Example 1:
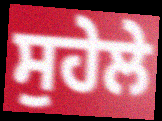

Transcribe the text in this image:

ਸੁਹੇਲੇ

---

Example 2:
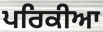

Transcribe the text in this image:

ਪਰਿਕੀਆ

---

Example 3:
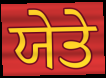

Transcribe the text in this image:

ਯੇਤੇ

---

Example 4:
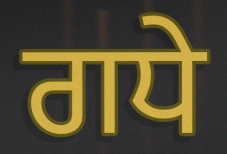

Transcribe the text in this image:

ਗਧੇ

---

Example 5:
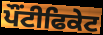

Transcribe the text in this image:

ਪੌਂਟੀਫਿਕੇਟ